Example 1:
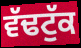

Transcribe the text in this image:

ਵੱਢਟੁੱਕ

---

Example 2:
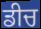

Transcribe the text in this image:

ਡੀਚ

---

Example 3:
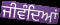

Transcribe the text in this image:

ਜੀਵੰਦਿਆਂ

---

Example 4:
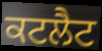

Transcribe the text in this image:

ਕਟਲੈਟ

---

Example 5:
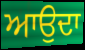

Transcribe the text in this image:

ਆਉਦਾ